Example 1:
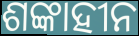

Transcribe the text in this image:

ଶଙ୍କାହୀନ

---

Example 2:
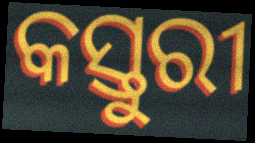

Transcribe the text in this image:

କସ୍ତୁରୀ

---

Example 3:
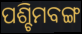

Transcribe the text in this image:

ପଶ୍ଚିମବଙ୍ଗ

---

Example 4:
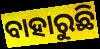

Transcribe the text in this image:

ବାହାରୁଛି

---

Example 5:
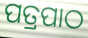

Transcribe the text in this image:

ପତ୍ରପାଠ